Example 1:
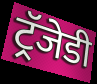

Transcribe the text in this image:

ट्रॅजेडी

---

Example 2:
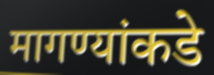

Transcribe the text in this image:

मागण्यांकडे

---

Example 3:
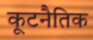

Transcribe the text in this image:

कूटनैतिक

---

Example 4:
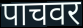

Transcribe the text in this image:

पाचवर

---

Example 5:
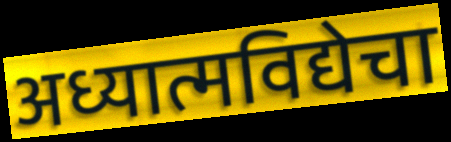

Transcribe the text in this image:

अध्यात्मविद्येचा